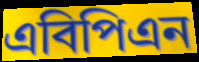
এবিপিএন